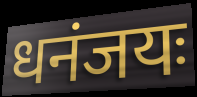
धनंजयः